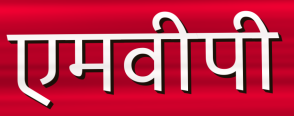
एमवीपी